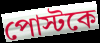
পোস্টকে